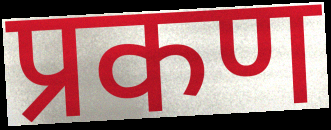
प्रकण